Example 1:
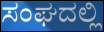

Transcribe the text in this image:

ಸಂಘದಲ್ಲಿ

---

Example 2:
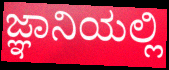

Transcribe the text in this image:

ಜ್ಞಾನಿಯಲ್ಲಿ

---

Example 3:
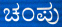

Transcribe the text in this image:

ಚಂಪು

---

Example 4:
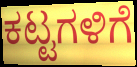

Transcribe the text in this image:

ಕಟ್ಟಗಳಿಗೆ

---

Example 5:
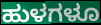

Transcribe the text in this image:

ಹುಳಗಳೂ